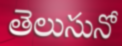
తెలుసునో